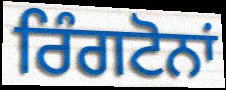
ਰਿੰਗਟੋਨਾਂ